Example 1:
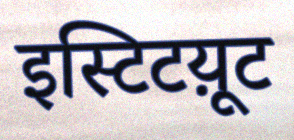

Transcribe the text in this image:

इस्टिटय़ूट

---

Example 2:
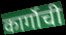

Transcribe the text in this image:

कार्गोची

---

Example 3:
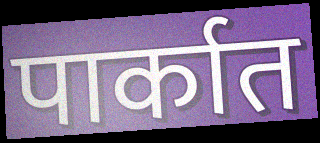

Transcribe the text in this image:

पार्कात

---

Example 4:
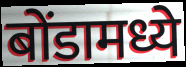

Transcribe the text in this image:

बोंडामध्ये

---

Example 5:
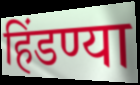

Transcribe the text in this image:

हिंडण्या